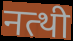
नत्‍थी